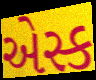
એસ્ક